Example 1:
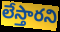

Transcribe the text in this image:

లేస్తారని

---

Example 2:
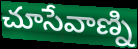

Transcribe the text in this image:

చూసేవాణ్ని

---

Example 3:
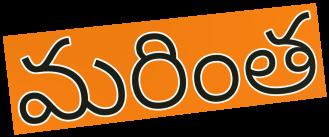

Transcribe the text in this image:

మరింత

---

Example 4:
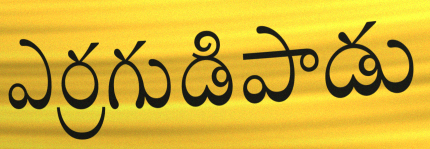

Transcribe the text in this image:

ఎర్రగుడిపాడు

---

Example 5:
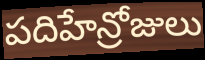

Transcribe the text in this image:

పదిహేన్రోజులు